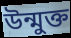
উন্মুক্ত